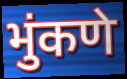
भुंकणे